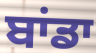
ਬਾਂਡਾ